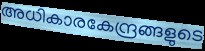
അധികാരകേന്ദ്രങ്ങളുടെ